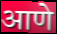
आणे